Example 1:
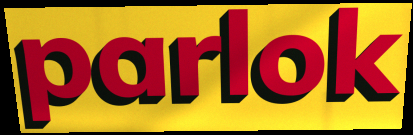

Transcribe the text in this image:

parlok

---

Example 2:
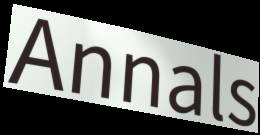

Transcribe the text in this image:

Annals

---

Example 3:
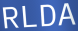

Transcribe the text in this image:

RLDA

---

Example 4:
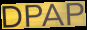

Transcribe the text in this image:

DPAP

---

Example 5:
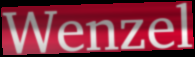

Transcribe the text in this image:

Wenzel